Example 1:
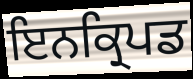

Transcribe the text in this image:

ਇਨਕ੍ਰਿਪਡ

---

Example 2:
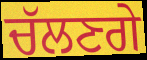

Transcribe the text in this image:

ਚੱਲਣਗੇ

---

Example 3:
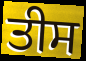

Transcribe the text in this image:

ਤੀਸ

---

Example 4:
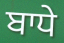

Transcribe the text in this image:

ਬਾਧੇ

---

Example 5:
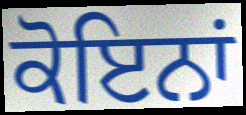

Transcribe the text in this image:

ਕੋਇਨਾਂ